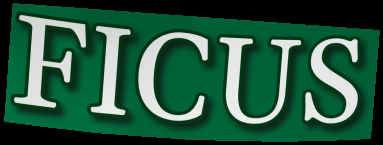
FICUS